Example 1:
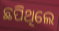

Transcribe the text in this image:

ଛପିଥିଲେ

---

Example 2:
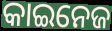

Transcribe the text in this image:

କାଇନେଜ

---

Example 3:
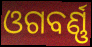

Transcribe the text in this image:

ଓଗବର୍ଣ୍ଣ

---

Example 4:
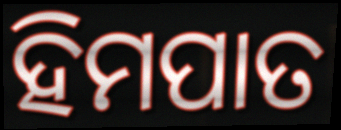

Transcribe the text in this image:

ହିମପାତ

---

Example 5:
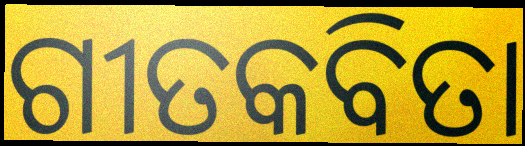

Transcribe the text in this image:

ଗୀତକବିତା